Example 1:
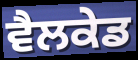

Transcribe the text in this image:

ਵੈਲਕੇਡ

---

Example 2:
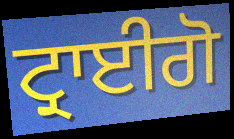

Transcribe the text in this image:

ਟ੍ਰਾਈਗੋ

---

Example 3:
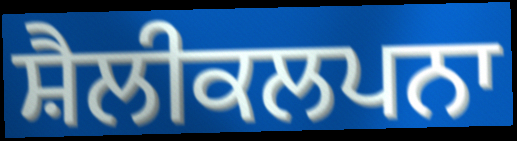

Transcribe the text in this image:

ਸ਼ੈਲੀਕਲਪਨਾ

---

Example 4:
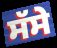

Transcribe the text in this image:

ਸੱਸੇ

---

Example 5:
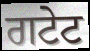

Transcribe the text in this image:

ਗਟੇਟ